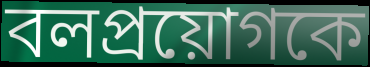
বলপ্রয়োগকে